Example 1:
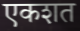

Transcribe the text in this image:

एकशत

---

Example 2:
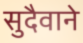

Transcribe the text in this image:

सुदैवाने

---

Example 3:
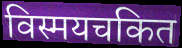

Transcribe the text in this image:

विस्मयचकित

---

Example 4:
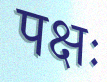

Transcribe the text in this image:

पक्षः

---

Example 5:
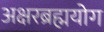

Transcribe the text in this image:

अक्षरब्रह्मयोग